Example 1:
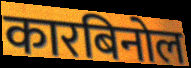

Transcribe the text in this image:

कारबिनोल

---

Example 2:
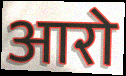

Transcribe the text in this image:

आरो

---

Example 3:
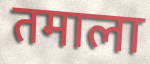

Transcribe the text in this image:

तमाला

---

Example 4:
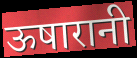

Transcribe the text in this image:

ऊषारानी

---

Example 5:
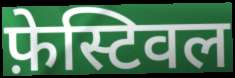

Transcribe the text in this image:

फ़ेस्टिवल